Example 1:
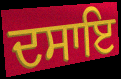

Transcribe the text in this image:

ਦਸਾਇ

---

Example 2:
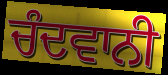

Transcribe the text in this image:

ਚੰਦਵਾਨੀ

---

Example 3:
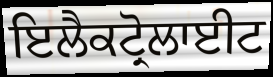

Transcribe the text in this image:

ਇਲੈਕਟ੍ਰੋਲਾਈਟ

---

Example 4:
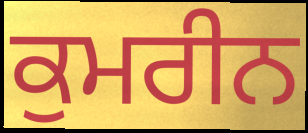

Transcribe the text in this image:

ਕੁਮਰੀਨ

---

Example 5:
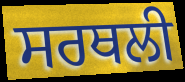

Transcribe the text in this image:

ਸਰਥਲੀ